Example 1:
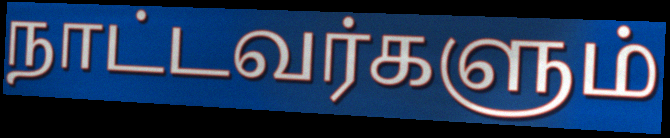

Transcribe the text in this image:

நாட்டவர்களும்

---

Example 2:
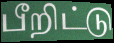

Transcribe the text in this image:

பீறிட்டு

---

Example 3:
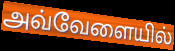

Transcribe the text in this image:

அவ்வேளையில்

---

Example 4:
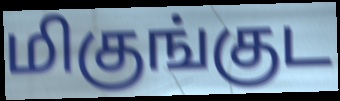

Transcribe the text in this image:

மிகுங்குட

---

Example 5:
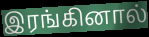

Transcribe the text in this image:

இரங்கினால்